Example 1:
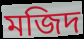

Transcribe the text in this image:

মজিদ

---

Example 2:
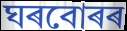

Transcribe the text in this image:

ঘৰবোৰৰ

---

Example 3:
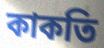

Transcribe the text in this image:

কাকতি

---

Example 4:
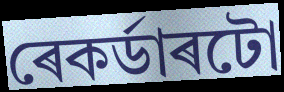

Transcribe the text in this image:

ৰেকৰ্ডাৰটো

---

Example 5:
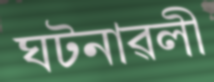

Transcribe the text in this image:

ঘটনাৱলী